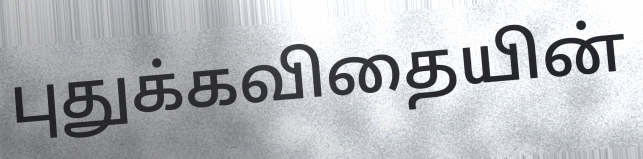
புதுக்கவிதையின்